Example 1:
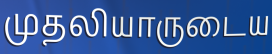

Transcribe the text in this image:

முதலியாருடைய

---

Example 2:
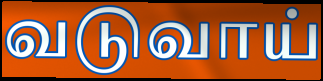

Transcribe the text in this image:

வடுவாய்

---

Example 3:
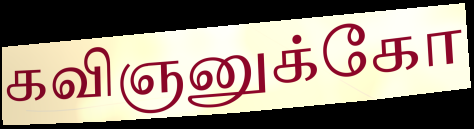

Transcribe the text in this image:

கவிஞனுக்கோ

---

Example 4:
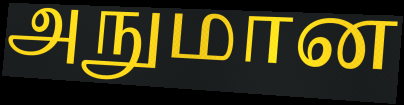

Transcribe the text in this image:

அநுமான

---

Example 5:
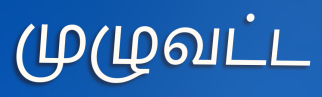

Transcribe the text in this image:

முழுவட்ட